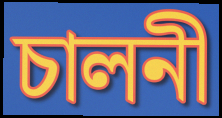
চালনী